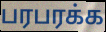
பரபரக்க